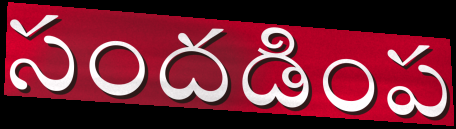
సందడింప